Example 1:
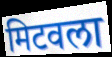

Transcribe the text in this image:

मिटवला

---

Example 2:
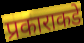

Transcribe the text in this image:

प्रकाराकडे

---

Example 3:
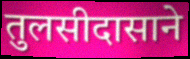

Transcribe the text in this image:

तुलसीदासाने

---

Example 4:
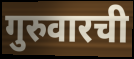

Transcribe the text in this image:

गुरुवारची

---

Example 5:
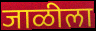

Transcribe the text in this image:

जाळीला